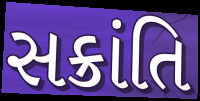
સક્રાંતિ